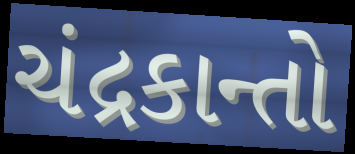
ચંદ્રકાન્તો